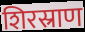
शिरस्राण